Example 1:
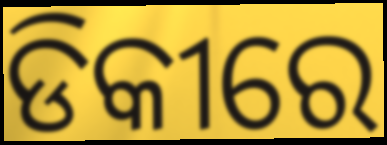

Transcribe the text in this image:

ଡିକୀରେ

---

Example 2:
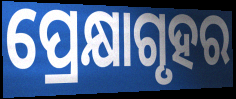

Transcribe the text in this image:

ପ୍ରେକ୍ଷାଗୃହର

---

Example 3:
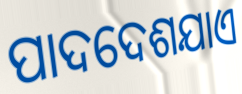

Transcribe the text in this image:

ପାଦଦେଶଯାଏ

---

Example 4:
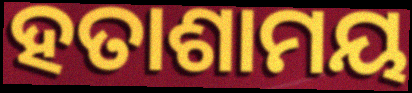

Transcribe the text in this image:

ହତାଶାମୟ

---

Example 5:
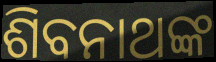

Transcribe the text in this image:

ଶିବନାଥଙ୍କ